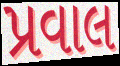
પ્રવાલ